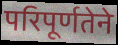
परिपूर्णतेने